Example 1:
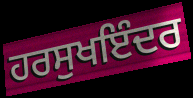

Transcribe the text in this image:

ਹਰਸੁਖਇੰਦਰ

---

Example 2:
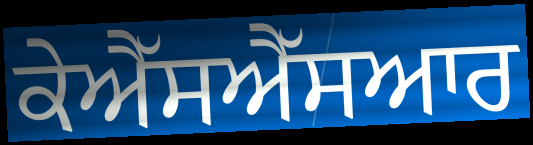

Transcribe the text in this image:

ਕੇਐੱਸਐੱਸਆਰ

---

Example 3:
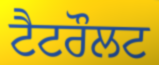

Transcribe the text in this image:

ਟੈਟਰੌਲਟ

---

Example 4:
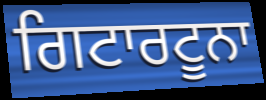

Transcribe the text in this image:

ਗਿਟਾਰਟੂਨਾ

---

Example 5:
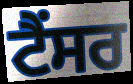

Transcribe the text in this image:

ਟੈਂਸਰ